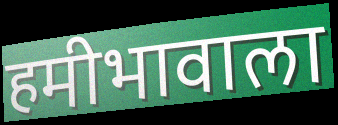
हमीभावाला